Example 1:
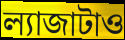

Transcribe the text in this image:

ল্যাজাটাও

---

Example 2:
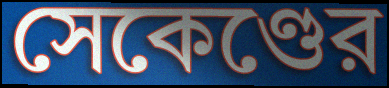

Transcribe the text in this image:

সেকেণ্ডের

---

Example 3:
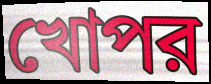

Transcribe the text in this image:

খোপর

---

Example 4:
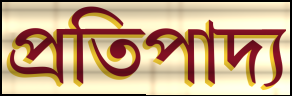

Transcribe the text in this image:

প্রতিপাদ্য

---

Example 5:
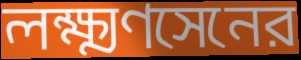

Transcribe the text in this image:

লক্ষ্মণসেনের